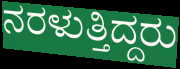
ನರಳುತ್ತಿದ್ದರು